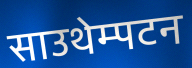
साउथेम्पटन